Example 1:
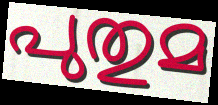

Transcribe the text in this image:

പുതുമ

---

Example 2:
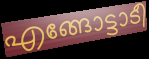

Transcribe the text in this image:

എങ്ങോട്ടാടീ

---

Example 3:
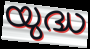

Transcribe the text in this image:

യുദ്ധ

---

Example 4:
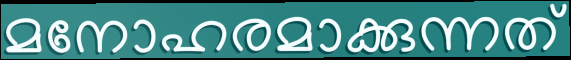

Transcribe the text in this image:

മനോഹരമാക്കുന്നത്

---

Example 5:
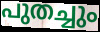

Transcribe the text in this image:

പുതച്ചും